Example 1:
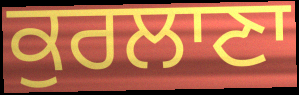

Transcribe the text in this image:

ਕੁਰਲਾਣਾ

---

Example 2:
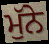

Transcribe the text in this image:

ਮੁੱਨੇ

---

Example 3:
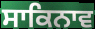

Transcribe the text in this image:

ਸਾਕਿਨਾਵ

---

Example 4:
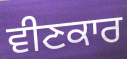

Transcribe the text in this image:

ਵੀਣਕਾਰ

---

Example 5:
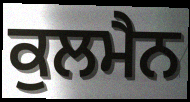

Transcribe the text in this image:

ਕੁਲਮੈਨ